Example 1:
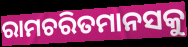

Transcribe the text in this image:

ରାମଚରିତମାନସକୁ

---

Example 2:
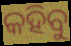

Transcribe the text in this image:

କହିବୁ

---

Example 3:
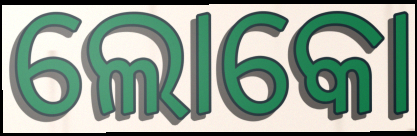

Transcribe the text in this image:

ଲୋକୋ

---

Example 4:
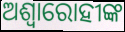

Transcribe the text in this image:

ଅଶ୍ୱାରୋହୀଙ୍କ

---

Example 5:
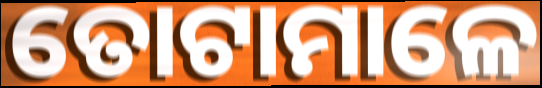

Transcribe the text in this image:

ତୋଟାମାଳେ